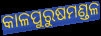
କାଳପୁରୁଷମଣ୍ଡଳ